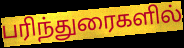
பரிந்துரைகளில்